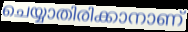
ചെയ്യാതിരിക്കാനാണ്